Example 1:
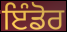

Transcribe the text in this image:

ਇੰਡੋਰ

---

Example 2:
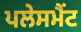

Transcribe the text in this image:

ਪਲੇਸਮੈਂਟ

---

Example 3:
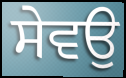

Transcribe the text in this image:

ਸੇਵਉ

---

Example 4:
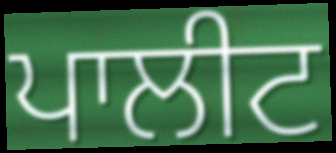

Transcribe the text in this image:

ਪਾਲੀਟ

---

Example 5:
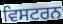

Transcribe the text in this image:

ਵਿਸਟਰਨ